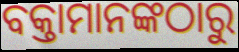
ବକ୍ତାମାନଙ୍କଠାରୁ